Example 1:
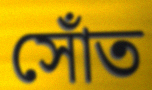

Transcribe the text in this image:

সোঁত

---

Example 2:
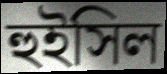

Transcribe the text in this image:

হুইসিল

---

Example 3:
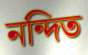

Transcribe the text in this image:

নন্দিত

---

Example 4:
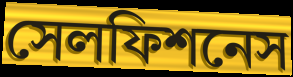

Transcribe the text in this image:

সেলফিশনেস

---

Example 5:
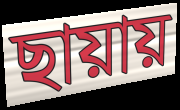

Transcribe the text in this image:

ছায়ায়